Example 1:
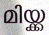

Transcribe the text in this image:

മിയ്ക്ക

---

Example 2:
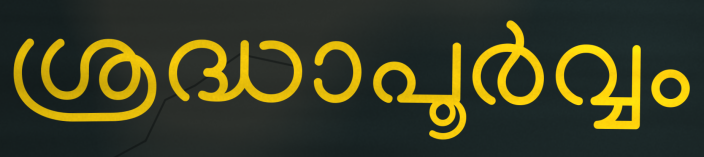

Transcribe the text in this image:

ശ്രദ്ധാപൂർവ്വം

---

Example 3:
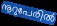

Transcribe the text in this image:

നൂറുപേരിൽ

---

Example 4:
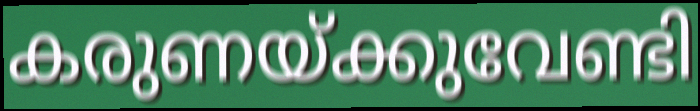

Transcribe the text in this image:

കരുണയ്ക്കുവേണ്ടി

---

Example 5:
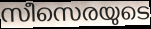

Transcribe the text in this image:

സീസെരയുടെ